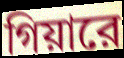
গিয়ারে